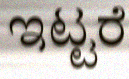
ಇಟ್ಟರೆ